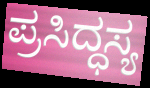
ಪ್ರಸಿದ್ಧಸ್ಯ